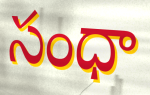
సంధా